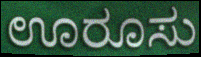
ಊರೂಸು